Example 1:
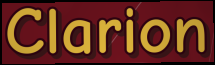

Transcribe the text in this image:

Clarion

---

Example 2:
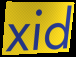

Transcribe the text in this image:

xid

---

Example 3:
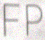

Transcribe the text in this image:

FP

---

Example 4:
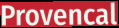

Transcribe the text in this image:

Provencal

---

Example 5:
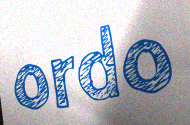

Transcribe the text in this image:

ordo